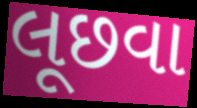
લૂછવા